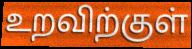
உறவிற்குள்